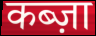
कब्ज़ा